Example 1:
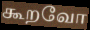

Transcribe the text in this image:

கூறவோ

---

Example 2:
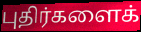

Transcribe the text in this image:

புதிர்களைக்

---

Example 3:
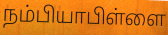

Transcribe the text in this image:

நம்பியாபிள்ளை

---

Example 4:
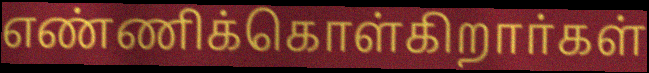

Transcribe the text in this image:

எண்ணிக்கொள்கிறார்கள்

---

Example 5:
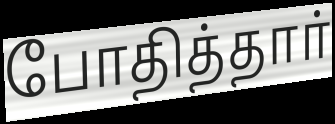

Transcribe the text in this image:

போதித்தார்